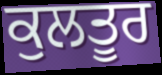
ਕੁਲਤੂਰ